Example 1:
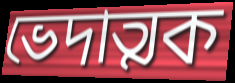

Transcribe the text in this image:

ভেদাত্মক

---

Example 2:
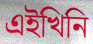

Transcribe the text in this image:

এইখিনি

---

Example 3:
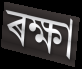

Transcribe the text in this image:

ৰক্ষা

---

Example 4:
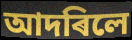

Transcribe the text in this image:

আদৰিলে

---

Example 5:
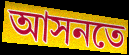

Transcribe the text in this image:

আসনতে